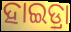
ହାଇଡ୍ରା